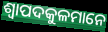
ଶ୍ୱାପଦକୁଳମାନେ